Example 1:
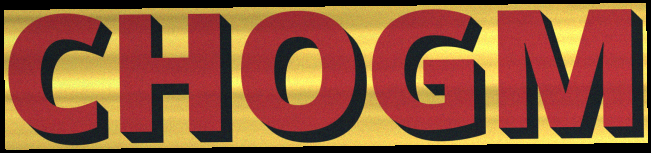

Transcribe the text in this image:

CHOGM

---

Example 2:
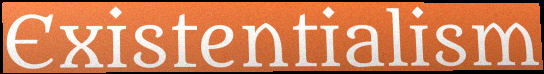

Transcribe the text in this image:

Existentialism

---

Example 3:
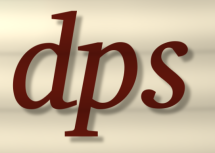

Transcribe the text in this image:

dps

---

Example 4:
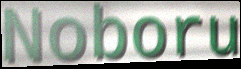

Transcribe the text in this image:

Noboru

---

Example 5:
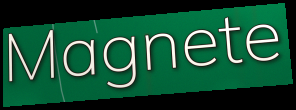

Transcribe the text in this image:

Magnete